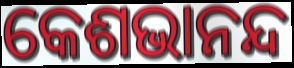
କେଶଭାନନ୍ଦ